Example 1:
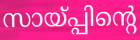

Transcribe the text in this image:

സായ്പ്പിന്റെ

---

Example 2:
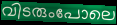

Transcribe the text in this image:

വിടരുംപോലെ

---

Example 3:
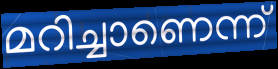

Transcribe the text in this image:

മറിച്ചാണെന്ന്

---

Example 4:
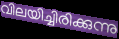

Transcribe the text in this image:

വിലയിച്ചിരിക്കുന്നു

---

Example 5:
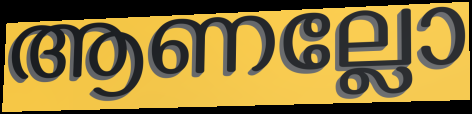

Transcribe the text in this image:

ആണല്ലോ